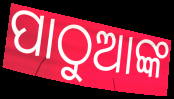
ପାଠୁଆଙ୍କ